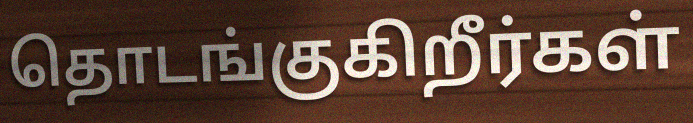
தொடங்குகிறீர்கள்